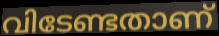
വിടേണ്ടതാണ്